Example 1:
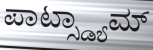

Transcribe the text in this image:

ಪಾಟ್ಸ್ಡ್ಯಾಮ್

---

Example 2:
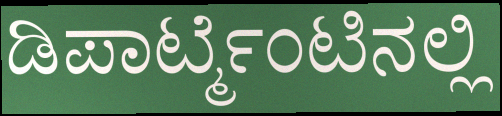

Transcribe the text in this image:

ಡಿಪಾರ್ಟ್ಮೆಂಟಿನಲ್ಲಿ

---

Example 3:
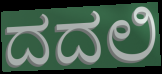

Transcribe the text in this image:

ದದಲಿ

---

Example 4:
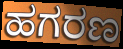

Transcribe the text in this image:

ಹಗರಣ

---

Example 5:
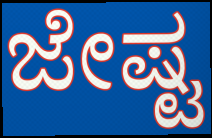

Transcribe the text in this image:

ಜೇಷ್ಟ